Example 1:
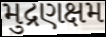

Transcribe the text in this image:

મુદ્રણક્ષમ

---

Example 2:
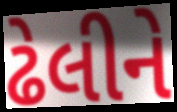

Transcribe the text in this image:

ઢેલીને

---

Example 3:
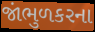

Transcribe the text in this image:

જાંભુળકરના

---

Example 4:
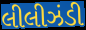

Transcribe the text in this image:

લીલીઝંડી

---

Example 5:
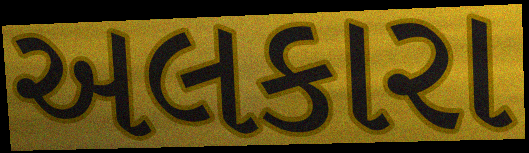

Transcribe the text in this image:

અલકારા